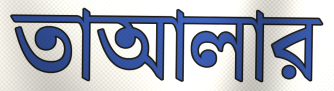
তাআলার